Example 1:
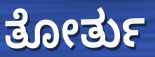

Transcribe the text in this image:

ತೋರ್ತು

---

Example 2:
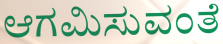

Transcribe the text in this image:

ಆಗಮಿಸುವಂತೆ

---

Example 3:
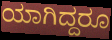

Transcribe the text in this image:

ಯಾಗಿದ್ದರೂ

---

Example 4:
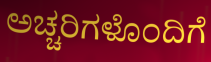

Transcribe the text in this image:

ಅಚ್ಚರಿಗಳೊಂದಿಗೆ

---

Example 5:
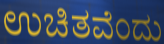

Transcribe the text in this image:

ಉಚಿತವೆಂದು